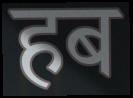
हब